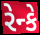
રેન્કે